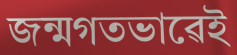
জন্মগতভাৱেই